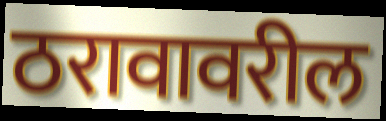
ठरावावरील